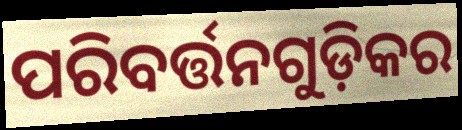
ପରିବର୍ତ୍ତନଗୁଡ଼ିକର